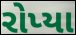
રોપ્યા